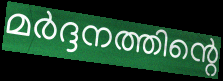
മർദ്ദനത്തിന്റെ